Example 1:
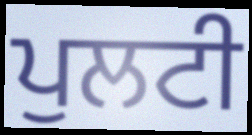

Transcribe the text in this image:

ਪੁਲਟੀ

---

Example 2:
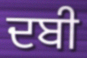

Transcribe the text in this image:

ਦਬੀ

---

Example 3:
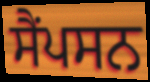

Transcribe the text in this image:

ਸੈਂਪਸਨ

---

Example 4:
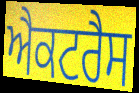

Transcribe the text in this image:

ਐਕਟਰੈਸ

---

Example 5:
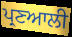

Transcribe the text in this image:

ਪ੍ਰਣਆਲੀ